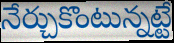
నేర్చుకొంటున్నట్టే